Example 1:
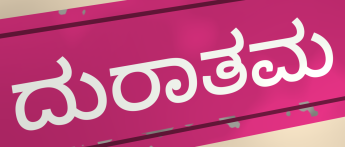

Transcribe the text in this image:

ದುರಾತಮ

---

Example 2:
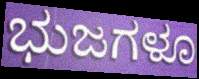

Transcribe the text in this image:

ಭುಜಗಳೂ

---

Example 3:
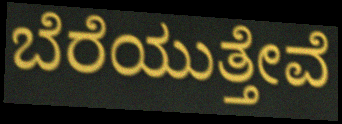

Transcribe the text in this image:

ಬೆರೆಯುತ್ತೇವೆ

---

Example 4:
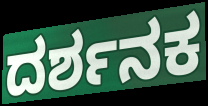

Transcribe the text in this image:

ದರ್ಶನಕ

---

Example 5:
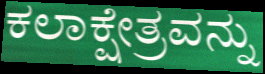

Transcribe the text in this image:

ಕಲಾಕ್ಷೇತ್ರವನ್ನು